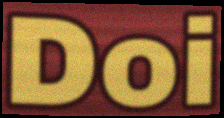
Doi